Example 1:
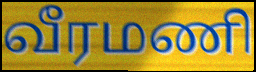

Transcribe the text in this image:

வீரமணி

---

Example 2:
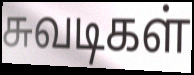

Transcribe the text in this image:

சுவடிகள்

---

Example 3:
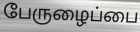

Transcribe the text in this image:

பேருழைப்பை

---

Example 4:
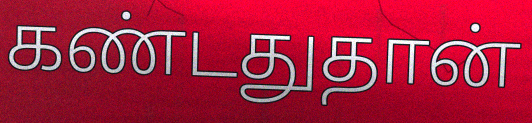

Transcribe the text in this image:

கண்டதுதான்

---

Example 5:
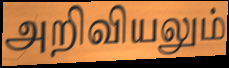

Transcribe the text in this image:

அறிவியலும்